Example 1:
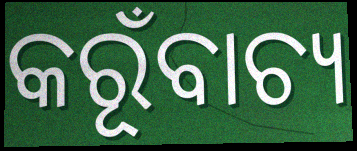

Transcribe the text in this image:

କରୂଁବାଚ୍ୟ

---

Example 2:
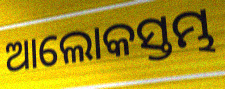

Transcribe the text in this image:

ଆଲୋକସ୍ତମ୍ଭ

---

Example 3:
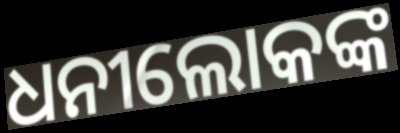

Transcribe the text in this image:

ଧନୀଲୋକଙ୍କ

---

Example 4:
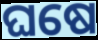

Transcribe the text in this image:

ଘଷେ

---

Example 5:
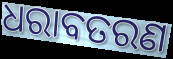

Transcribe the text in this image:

ଧରାବତରଣ